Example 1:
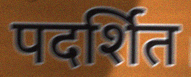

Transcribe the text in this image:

पदर्शित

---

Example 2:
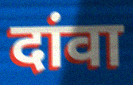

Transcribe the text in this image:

दांवा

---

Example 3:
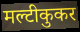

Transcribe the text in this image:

मल्टीकुकर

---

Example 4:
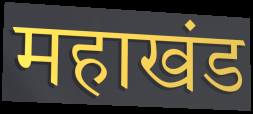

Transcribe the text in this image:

महाखंड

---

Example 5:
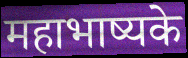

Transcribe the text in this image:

महाभाष्यके